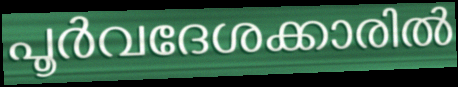
പൂർവദേശക്കാരിൽ